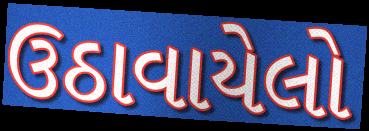
ઉઠાવાયેલો